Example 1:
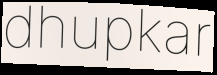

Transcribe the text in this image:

dhupkar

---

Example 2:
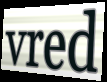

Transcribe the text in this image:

vred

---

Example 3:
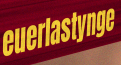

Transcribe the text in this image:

euerlastynge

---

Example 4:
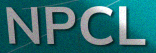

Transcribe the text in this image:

NPCL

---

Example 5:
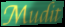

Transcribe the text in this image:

Mudit